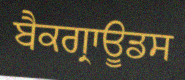
ਬੈਕਗ੍ਰਾਊਡਸ